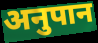
अनुपान